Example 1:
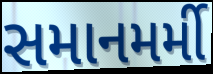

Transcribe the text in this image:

સમાનમર્મી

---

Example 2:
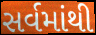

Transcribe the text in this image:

સર્વમાંથી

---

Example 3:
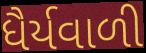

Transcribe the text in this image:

ધૈર્યવાળી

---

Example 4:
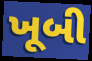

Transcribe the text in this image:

ખૂબી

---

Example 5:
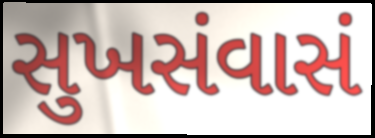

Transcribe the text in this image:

સુખસંવાસં